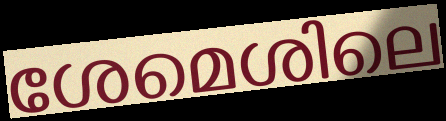
ശേമെശിലെ